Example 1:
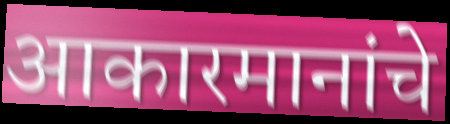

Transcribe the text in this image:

आकारमानांचे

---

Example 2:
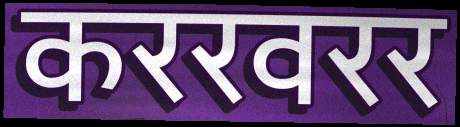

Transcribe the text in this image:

कररवरर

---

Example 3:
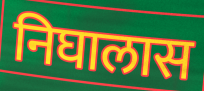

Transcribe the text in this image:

निघालास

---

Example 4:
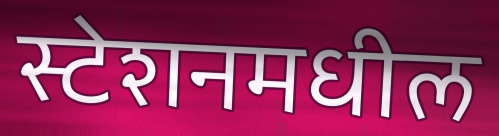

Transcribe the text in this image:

स्टेशनमधील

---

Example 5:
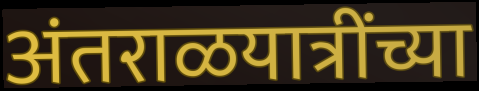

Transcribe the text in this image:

अंतराळयात्रींच्या